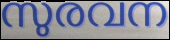
സുരവന